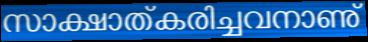
സാക്ഷാത്കരിച്ചവനാണു്